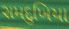
સમદુખિયા